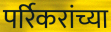
पर्रिकरांच्या